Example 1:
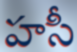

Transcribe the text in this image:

హసీ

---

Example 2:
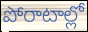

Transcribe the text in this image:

పోరాటాల్లో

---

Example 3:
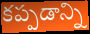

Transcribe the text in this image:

కప్పడాన్ని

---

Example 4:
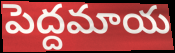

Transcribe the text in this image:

పెద్దమాయ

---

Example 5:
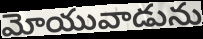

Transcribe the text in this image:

మోయువాడును